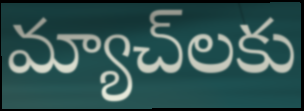
మ్యాచ్‌లకు